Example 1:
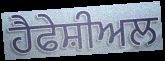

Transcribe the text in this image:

ਹੈਫੇਸ਼ੀਅਲ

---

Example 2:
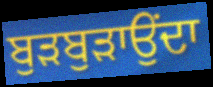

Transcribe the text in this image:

ਬੁੜਬੁੜਾਉਂਦਾ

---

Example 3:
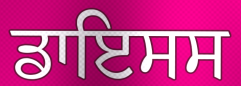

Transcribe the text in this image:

ਡਾਇਸਸ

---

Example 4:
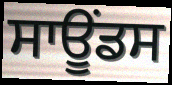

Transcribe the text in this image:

ਸਾਊਂਡਸ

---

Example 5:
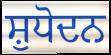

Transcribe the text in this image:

ਸ਼ੁਧੋਦਨ